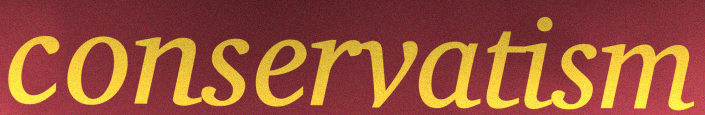
conservatism